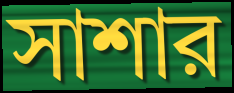
সাশার